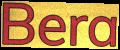
Bera